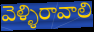
వెళ్ళిరావాలి